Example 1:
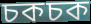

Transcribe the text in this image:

চকচক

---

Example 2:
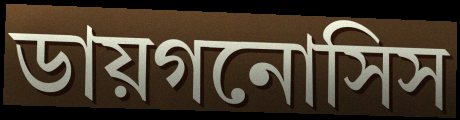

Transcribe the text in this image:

ডায়গনোসিস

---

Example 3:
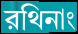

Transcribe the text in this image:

রথিনাং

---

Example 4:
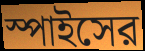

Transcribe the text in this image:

স্পাইসের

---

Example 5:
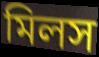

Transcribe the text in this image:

মিলস